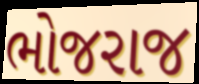
ભોજરાજ